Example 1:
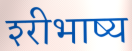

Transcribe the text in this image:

श्रीभाष्य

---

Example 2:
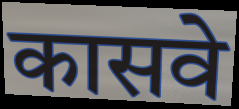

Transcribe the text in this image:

कासवे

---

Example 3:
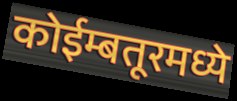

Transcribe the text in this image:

कोईम्बतूरमध्ये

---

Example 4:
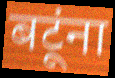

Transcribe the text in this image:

बटूंना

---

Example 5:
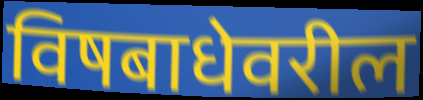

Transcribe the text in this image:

विषबाधेवरील